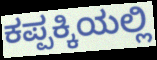
ಕಪ್ಪಕ್ಕಿಯಲ್ಲಿ